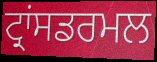
ਟ੍ਰਾਂਸਡਰਮਲ